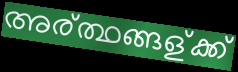
അര്ത്ഥങ്ങള്ക്ക്